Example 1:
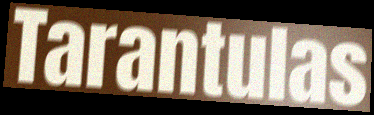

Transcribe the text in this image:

Tarantulas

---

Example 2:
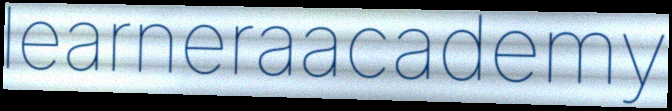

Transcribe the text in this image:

learneraacademy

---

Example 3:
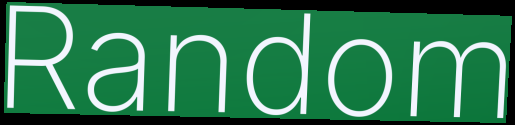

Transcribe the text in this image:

Random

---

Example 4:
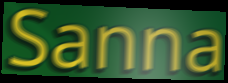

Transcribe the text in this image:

Sanna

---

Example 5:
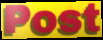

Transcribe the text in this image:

Post